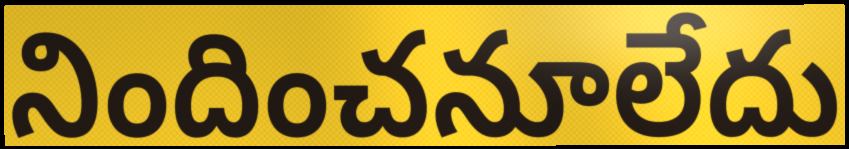
నిందించనూలేదు